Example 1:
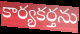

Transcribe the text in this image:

కార్యకర్తను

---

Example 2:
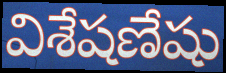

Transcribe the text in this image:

విశేషణేషు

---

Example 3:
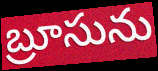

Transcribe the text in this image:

బ్రూసును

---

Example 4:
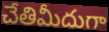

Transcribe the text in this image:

చేతిమీదుగా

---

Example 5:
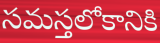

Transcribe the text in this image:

సమస్తలోకానికి